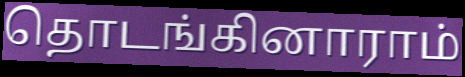
தொடங்கினாராம்